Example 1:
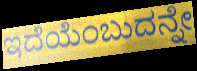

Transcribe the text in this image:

ಇದೆಯೆಂಬುದನ್ನೇ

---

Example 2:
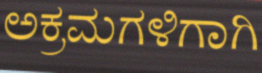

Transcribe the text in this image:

ಅಕ್ರಮಗಳಿಗಾಗಿ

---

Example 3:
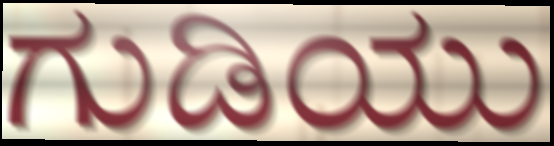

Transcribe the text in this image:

ಗುಡಿಯು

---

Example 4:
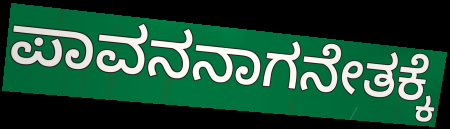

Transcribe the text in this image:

ಪಾವನನಾಗನೇತಕ್ಕೆ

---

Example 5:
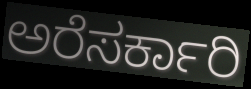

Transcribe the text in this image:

ಅರೆಸರ್ಕಾರಿ